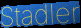
Stadler